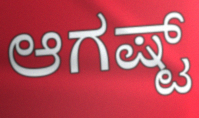
ಆಗಷ್ಟ್